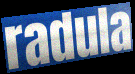
radula